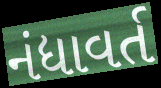
નંદ્યાવર્ત